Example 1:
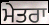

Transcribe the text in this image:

ਮੇਤਰਾ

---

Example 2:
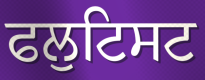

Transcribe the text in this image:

ਫਲੁਟਿਸਟ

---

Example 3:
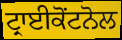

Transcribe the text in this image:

ਟ੍ਰਾਈਕੋਂਟਨੋਲ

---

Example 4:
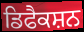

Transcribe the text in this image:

ਡਿਫੈਕਸ਼ਨ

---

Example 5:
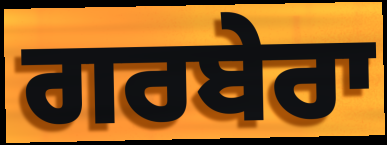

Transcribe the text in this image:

ਗਰਬੇਰਾ